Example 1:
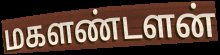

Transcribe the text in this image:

மகளண்டளன்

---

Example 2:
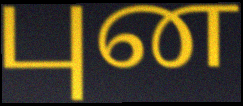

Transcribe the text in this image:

புன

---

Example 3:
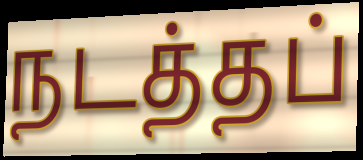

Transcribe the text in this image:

நடத்தப்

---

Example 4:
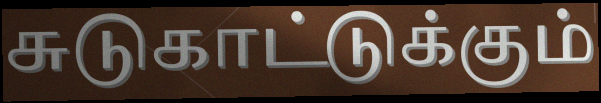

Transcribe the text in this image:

சுடுகாட்டுக்கும்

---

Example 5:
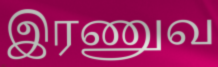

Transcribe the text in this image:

இரணுவ